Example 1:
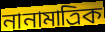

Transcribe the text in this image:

নানামাত্রিক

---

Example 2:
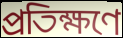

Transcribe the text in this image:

প্রতিক্ষণে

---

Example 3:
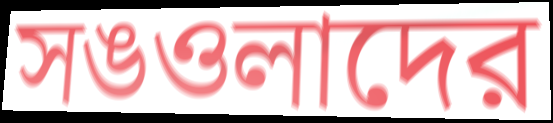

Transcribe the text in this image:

সঙওলাদের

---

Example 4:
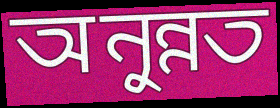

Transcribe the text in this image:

অনুন্নত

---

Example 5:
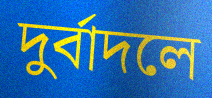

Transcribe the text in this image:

দুর্বাদলে